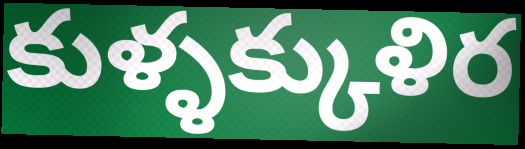
కుళ్ళక్కుళిర